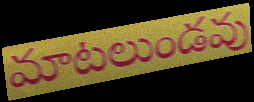
మాటలుండవు